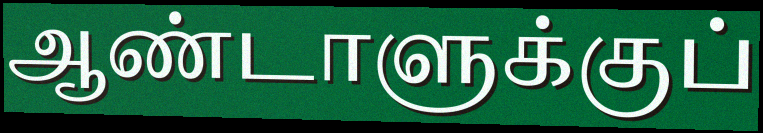
ஆண்டாளுக்குப்